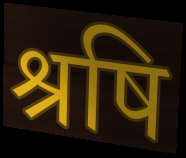
श्रषि